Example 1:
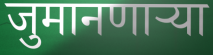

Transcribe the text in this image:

जुमानणार्‍या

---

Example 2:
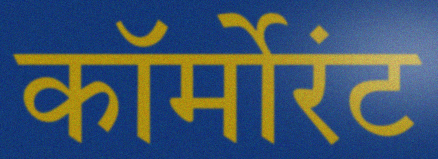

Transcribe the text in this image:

कॉर्मोरंट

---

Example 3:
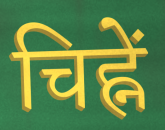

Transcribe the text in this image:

चिह्नें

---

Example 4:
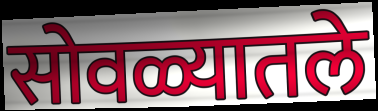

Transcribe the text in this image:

सोवळ्यातले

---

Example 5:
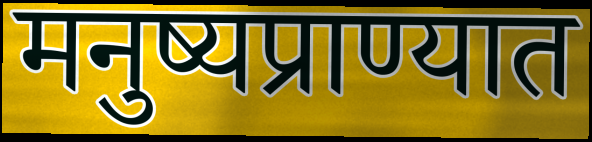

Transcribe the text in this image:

मनुष्यप्राण्यात